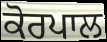
ਕੋਰਪਾਲ